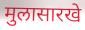
मुलासारखे